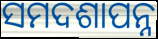
ସମଦଶାପନ୍ନ